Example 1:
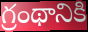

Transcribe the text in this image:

గ్రంథానికి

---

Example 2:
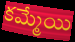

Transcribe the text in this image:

కమ్మేయి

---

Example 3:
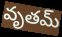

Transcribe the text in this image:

వృతమ్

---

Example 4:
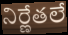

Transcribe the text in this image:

నిర్ణేతలే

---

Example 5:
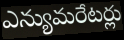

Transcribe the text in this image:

ఎన్యుమరేటర్లు